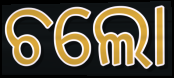
ଚଲୋ